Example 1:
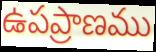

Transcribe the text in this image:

ఉపప్రాణము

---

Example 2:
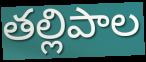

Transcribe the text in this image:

తల్లిపాల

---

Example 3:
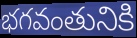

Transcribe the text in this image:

భగవంతునికి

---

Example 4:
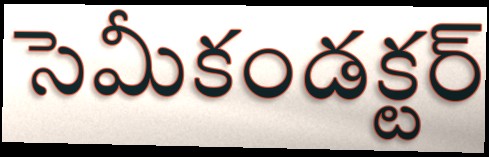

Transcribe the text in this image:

సెమీకండక్టర్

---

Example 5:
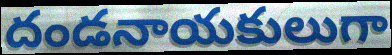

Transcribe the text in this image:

దండనాయకులుగా